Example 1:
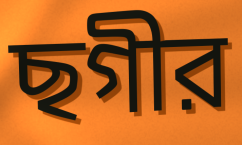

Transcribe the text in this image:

ছগীর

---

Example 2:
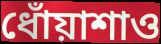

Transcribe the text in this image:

ধোঁয়াশাও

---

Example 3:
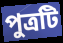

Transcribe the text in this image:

পুত্রটি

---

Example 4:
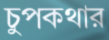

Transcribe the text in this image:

চুপকথার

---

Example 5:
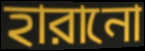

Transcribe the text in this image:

হারানো